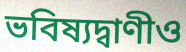
ভবিষ্যদ্বাণীও